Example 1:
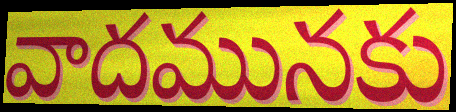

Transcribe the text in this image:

వాదమునకు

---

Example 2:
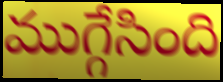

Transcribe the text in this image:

ముగ్గేసింది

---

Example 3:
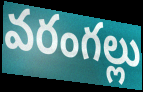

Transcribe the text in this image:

వరంగల్లు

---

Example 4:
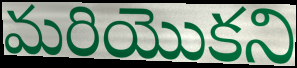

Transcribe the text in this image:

మరియొకని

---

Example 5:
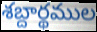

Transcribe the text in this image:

శబ్దార్థముల